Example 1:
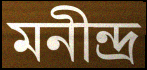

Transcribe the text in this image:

মনীন্দ্র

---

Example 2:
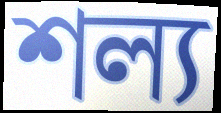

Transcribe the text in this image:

শল্য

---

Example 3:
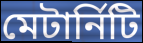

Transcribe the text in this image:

মেটার্নিটি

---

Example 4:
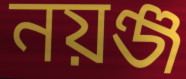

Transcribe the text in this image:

নয়ঞ্জ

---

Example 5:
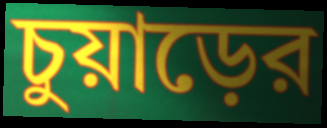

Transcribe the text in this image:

চুয়াড়ের